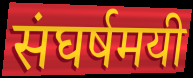
संघर्षमयी